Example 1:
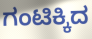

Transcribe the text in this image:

ಗಂಟಿಕ್ಕಿದ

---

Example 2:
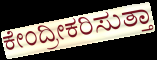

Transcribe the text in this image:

ಕೇಂದ್ರೀಕರಿಸುತ್ತಾ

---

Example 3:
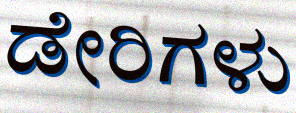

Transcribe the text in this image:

ಡೇರಿಗಳು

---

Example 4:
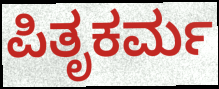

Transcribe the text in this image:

ಪಿತೃಕರ್ಮ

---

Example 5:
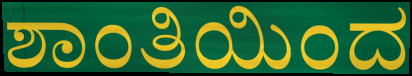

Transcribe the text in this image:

ಶಾಂತಿಯಿಂದ